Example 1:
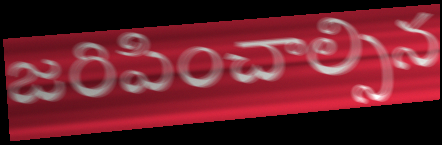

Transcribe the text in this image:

జరిపించాల్సిన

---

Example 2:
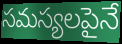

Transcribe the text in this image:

సమస్యలపైనే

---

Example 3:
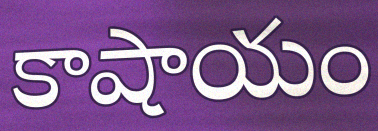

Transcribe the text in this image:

కాషాయం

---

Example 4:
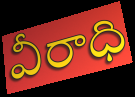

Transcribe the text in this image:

వీరాధి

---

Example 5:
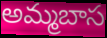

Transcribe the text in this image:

అమ్మబాస